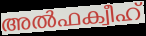
അൽഫക്വീഹ്